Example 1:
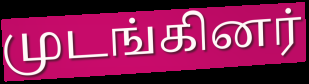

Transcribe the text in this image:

முடங்கினர்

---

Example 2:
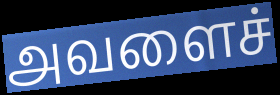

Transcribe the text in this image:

அவளைச்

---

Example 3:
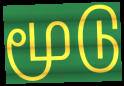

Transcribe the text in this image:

மூடு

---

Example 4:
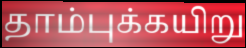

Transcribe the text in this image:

தாம்புக்கயிறு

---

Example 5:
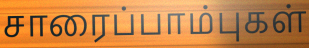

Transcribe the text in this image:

சாரைப்பாம்புகள்